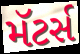
મૅટર્સ